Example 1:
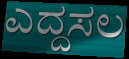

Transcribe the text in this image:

ಎದ್ದಸಲ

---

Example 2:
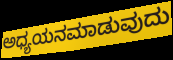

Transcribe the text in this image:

ಅಧ್ಯಯನಮಾಡುವುದು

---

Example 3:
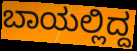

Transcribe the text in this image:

ಬಾಯಲ್ಲಿದ್ದ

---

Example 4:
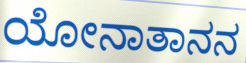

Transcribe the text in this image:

ಯೋನಾತಾನನ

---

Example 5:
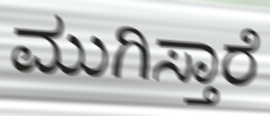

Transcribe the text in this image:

ಮುಗಿಸ್ತಾರೆ